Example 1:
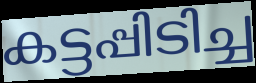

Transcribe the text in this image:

കട്ടപ്പിടിച്ച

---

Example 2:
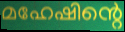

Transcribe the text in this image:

മഹേഷിന്റെ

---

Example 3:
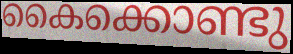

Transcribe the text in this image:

കൈക്കൊണ്ടു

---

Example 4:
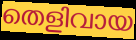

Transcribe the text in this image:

തെളിവായ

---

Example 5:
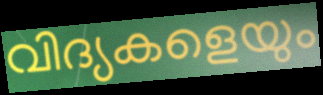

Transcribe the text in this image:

വിദ്യകളെയും